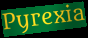
Pyrexia